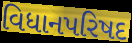
વિધાનપરિષદ